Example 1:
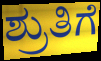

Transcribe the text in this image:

ಶ್ರುತಿಗೆ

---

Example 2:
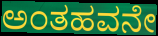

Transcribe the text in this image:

ಅಂತಹವನೇ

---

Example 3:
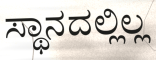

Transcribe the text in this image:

ಸ್ಥಾನದಲ್ಲಿಲ್ಲ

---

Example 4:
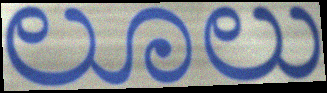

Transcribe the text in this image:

ಲೂಲು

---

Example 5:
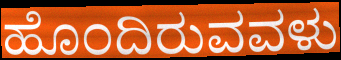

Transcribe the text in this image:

ಹೊಂದಿರುವವಳು